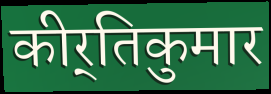
कीर्तिकुमार